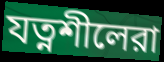
যত্নশীলেরা